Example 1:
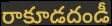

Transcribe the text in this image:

రాకూడదండీ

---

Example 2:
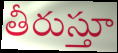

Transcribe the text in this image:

తీరుస్తూ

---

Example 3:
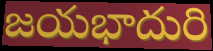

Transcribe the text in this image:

జయభాదురి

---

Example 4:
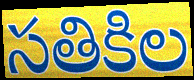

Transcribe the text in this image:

సతికిల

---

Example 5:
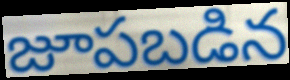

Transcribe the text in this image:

జూపబడిన